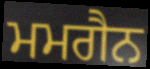
ਮਮਗੈਨ